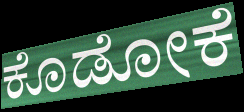
ಕೊಡೋಕೆ